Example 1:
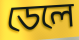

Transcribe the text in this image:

ডেলে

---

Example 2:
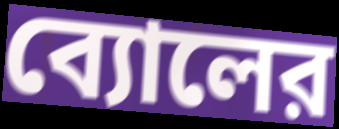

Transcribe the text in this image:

ব্যোলের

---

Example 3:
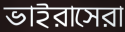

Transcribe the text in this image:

ভাইরাসেরা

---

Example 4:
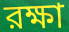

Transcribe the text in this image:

রক্ষা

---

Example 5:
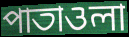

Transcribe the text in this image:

পাতাওলা